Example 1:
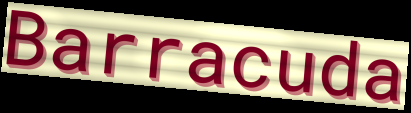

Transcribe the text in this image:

Barracuda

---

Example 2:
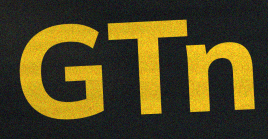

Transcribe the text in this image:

GTn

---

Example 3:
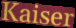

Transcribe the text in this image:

Kaiser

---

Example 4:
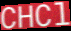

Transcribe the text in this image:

CHCl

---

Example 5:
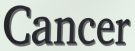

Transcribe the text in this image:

Cancer